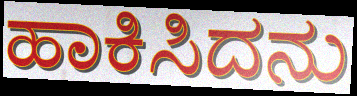
ಹಾಕಿಸಿದನು